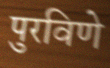
पुरविणे